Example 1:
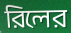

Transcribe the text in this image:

রিলের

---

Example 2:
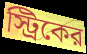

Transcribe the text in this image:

স্ট্রিকের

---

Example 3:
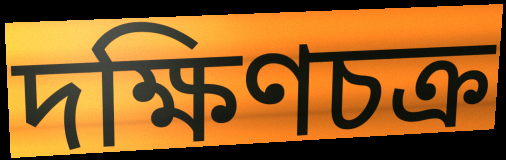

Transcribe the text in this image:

দক্ষিণচক্র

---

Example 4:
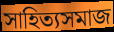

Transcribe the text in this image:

সাহিত্যসমাজ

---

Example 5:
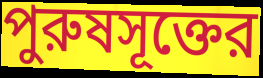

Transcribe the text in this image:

পুরুষসূক্তের